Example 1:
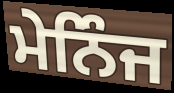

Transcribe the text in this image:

ਮੇਨਿੰਜ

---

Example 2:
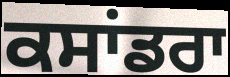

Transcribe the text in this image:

ਕਸਾਂਡਰਾ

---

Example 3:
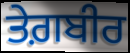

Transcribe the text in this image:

ਤੇਗ਼ਬੀਰ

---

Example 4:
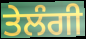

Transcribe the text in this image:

ਤੇਲੰਗੀ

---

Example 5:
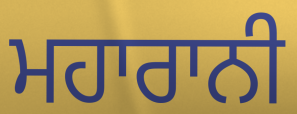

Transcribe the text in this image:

ਮਹਾਰਾਨੀ